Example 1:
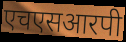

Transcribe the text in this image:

एचएसआरपी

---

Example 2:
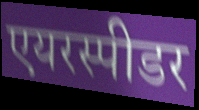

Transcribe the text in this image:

एयरस्पीडर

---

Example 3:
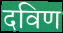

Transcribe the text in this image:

दविण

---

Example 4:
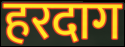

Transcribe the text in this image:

हरदाग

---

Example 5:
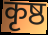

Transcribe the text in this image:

कृष्ठ